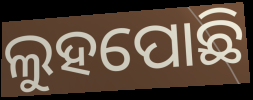
ଲୁହପୋଛି